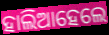
ହାଲିଆହେଲେ